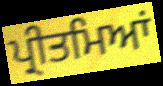
ਪ੍ਰੀਤਮਿਆਂ